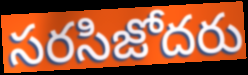
సరసిజోదరు